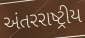
અંતરરાષ્ટ્રીય